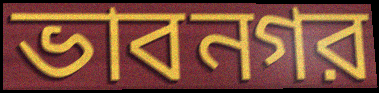
ভাবনগর